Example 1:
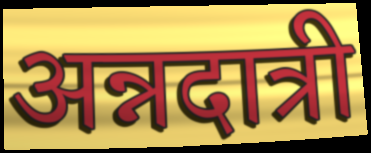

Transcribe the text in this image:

अन्नदात्री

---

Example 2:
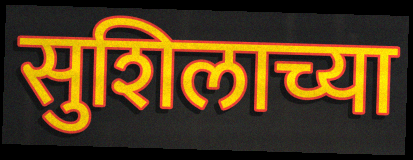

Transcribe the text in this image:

सुशिलाच्या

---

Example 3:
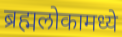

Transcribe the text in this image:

ब्रह्मलोकामध्ये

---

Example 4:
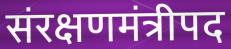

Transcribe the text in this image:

संरक्षणमंत्रीपद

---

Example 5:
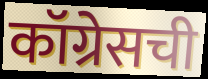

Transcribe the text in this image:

कॉग्रेसची